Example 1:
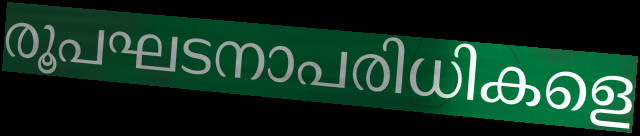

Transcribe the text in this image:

രൂപഘടനാപരിധികളെ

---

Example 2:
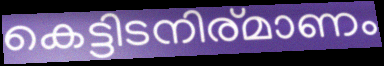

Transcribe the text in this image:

കെട്ടിടനിര്മാണം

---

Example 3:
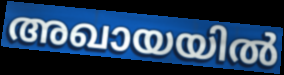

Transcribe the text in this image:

അഖായയിൽ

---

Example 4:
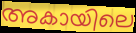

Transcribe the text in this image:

അകായിലെ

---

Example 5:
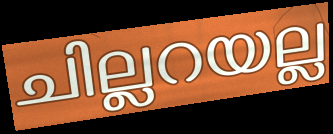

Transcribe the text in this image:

ചില്ലറയല്ല